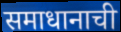
समाधानाची